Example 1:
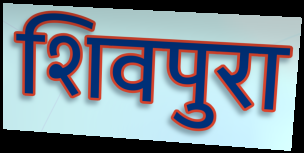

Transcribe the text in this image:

शिवपुरा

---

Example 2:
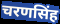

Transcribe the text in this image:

चरणसिंह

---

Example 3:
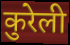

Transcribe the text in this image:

कुरेली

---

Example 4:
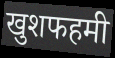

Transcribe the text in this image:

खुशफहमी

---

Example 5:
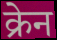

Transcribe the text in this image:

क्रेन